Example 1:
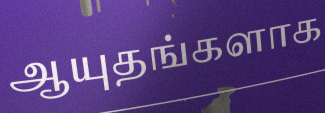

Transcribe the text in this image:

ஆயுதங்களாக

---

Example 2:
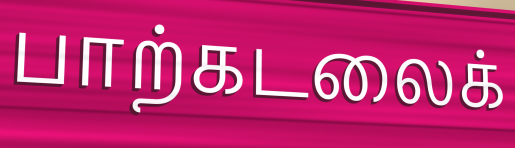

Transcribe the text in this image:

பாற்கடலைக்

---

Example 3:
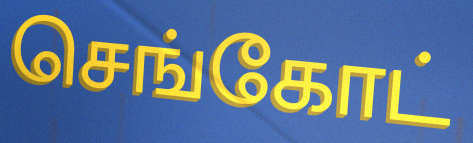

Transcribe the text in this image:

செங்கோட்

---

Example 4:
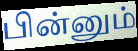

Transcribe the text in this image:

பின்னும்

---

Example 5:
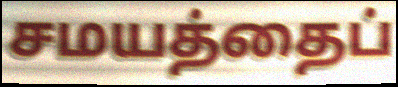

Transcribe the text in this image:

சமயத்தைப்